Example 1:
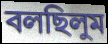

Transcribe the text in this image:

বলছিলুম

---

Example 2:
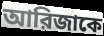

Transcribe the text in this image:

আরিজাকে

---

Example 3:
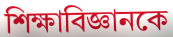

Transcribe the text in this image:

শিক্ষাবিজ্ঞানকে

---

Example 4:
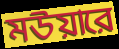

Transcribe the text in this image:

মউয়ারে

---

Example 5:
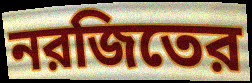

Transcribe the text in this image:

নরজিতের